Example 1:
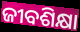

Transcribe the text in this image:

ଜୀବଶିକ୍ଷା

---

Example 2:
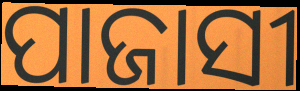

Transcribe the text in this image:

ପାଜାସୀ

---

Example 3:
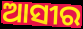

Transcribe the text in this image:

ଆସୀର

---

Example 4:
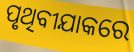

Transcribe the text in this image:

ପୃଥିବୀଯାକରେ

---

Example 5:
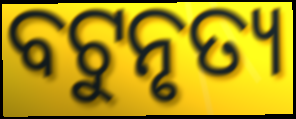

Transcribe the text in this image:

ବଟୁନୃତ୍ୟ